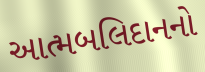
આત્મબલિદાનનો